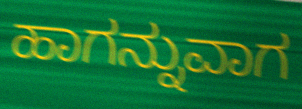
ಹಾಗನ್ನುವಾಗ